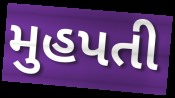
મુહપતી